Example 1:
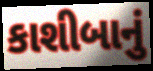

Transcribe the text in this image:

કાશીબાનું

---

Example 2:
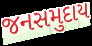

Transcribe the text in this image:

જનસમુદાય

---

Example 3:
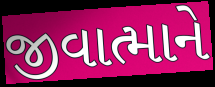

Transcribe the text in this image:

જીવાત્માને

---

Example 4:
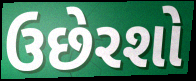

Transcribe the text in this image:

ઉછેરશો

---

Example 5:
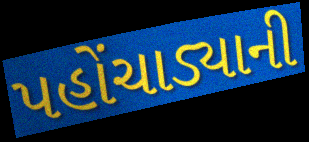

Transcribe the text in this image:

પહોંચાડ્યાની